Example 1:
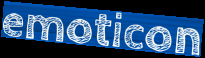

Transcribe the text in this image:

emoticon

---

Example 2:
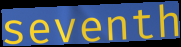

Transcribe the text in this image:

seventh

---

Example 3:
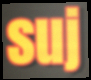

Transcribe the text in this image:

suj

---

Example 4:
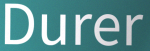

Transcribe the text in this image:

Durer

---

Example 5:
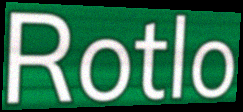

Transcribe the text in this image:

Rotlo